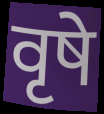
वृषे